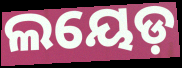
ଲୟେଡ଼